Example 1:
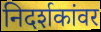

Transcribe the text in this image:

निदर्शकांवर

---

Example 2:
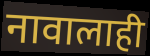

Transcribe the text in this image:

नावालाही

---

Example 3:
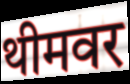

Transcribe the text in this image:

थीमवर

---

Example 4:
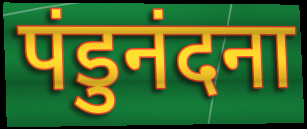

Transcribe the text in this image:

पंडुनंदना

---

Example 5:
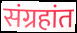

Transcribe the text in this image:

संग्रहांत